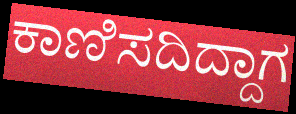
ಕಾಣಿಸದಿದ್ದಾಗ